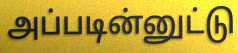
அப்படின்னுட்டு